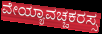
ವೇಯ್ಯಾವಚ್ಚಕರಸ್ಸ